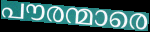
പൗരന്മാരെ